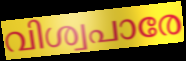
വിശ്വപാരേ